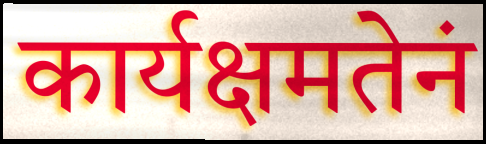
कार्यक्षमतेनं